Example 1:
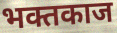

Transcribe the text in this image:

भक्तकाज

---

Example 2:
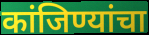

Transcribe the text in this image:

कांजिण्यांचा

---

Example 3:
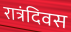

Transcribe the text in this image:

रात्रंदिवस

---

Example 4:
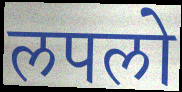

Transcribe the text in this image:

लपलो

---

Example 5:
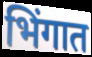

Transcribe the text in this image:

भिंगात